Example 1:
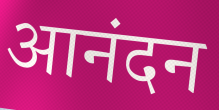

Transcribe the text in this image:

आनंदन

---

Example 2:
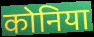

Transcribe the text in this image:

कोनिया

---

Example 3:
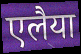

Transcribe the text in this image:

एलैया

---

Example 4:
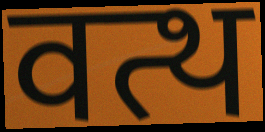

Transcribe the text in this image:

वत्थ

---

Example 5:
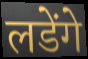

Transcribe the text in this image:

लडेंगे